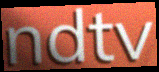
ndtv